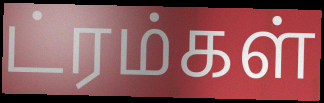
ட்ரம்கள்